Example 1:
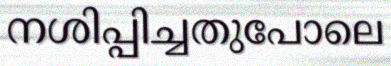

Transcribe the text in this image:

നശിപ്പിച്ചതുപോലെ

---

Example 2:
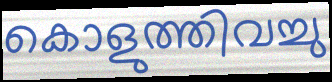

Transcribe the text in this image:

കൊളുത്തിവച്ചു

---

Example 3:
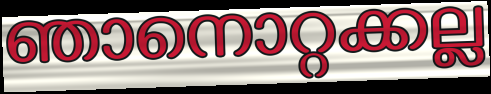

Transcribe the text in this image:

ഞാനൊറ്റക്കല്ല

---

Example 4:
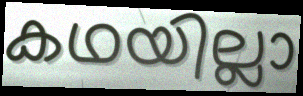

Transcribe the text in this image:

കഥയില്ലാ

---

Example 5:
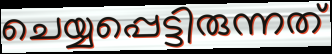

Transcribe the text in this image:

ചെയ്യപ്പെട്ടിരുന്നത്